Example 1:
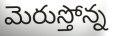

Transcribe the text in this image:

మెరుస్తోన్న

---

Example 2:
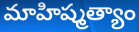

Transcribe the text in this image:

మాహిష్మత్యాం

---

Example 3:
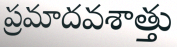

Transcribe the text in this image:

ప్రమాదవశాత్తు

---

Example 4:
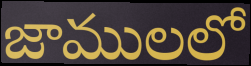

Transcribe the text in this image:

జాములలో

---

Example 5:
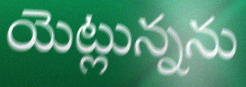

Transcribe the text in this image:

యెట్లున్నను